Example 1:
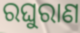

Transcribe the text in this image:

ରଘୁରାଣ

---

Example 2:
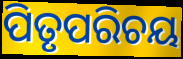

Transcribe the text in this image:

ପିତୃପରିଚୟ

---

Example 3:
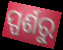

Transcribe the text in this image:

ସ୍ପର୍ଶରୁ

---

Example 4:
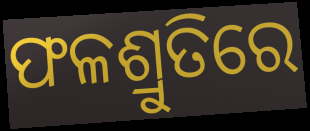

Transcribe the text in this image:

ଫଳଶ୍ରୁତିରେ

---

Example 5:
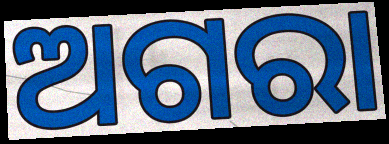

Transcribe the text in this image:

ଅଗରା